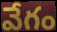
వేగం